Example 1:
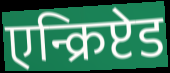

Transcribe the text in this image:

एन्क्रिप्टेड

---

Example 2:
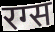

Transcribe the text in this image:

रग्स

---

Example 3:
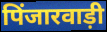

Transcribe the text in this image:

पिंजारवाड़ी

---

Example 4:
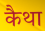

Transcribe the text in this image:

कैथा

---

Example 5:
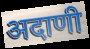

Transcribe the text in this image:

अदाणी